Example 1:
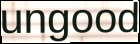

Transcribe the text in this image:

ungood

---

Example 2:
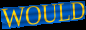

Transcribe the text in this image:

WOULD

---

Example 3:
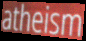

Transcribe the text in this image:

atheism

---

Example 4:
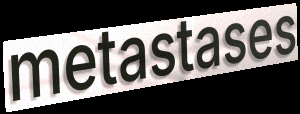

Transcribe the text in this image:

metastases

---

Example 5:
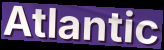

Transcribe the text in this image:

Atlantic